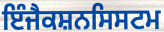
ਇੰਜੈਕਸ਼ਨਸਿਸਟਮ